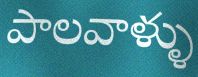
పాలవాళ్ళు